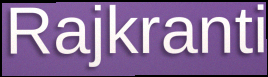
Rajkranti